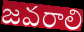
జవరాలి